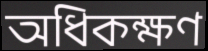
অধিকক্ষণ